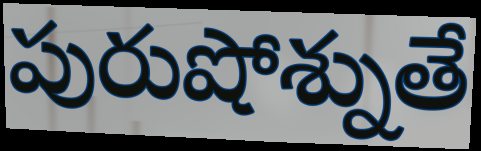
పురుషోశ్నుతే